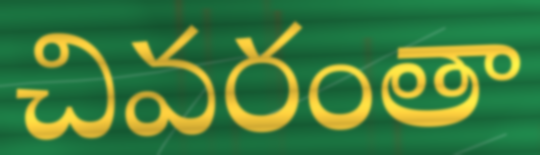
చివరంతా